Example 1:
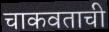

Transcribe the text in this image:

चाकवताची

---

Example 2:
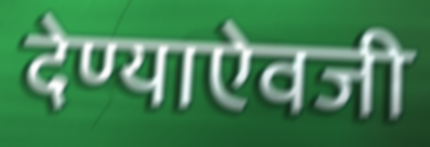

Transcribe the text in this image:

देण्याऐवजी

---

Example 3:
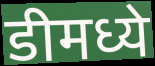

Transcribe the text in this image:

डीमध्ये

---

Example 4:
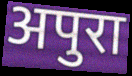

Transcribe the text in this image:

अपुरा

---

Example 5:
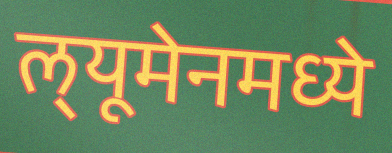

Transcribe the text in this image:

ल्यूमेनमध्ये